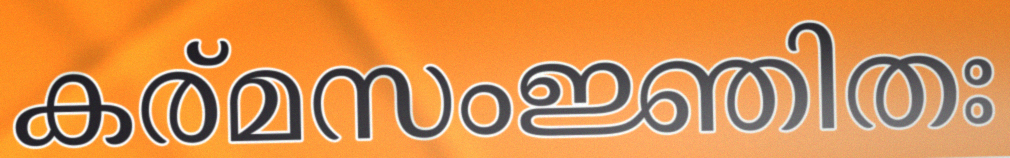
കര്മസംജ്ഞിതഃ